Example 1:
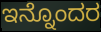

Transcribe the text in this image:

ಇನ್ನೊಂದರ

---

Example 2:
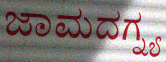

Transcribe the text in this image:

ಜಾಮದಗ್ನ್ಯ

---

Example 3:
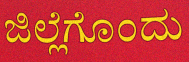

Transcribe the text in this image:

ಜಿಲ್ಲೆಗೊಂದು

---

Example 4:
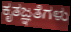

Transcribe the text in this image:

ಕೃತಜ್ಞತೆಗಳು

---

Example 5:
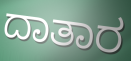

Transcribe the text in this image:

ದಾತಾರ